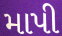
માપી